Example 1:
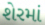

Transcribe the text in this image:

શેરમાં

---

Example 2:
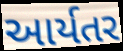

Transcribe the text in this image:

આર્યતર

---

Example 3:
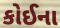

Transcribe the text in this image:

કોઈના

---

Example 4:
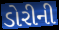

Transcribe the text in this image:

ડોરીની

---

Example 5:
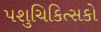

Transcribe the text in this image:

પશુચિકિત્સકો